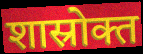
शास्रोक्त